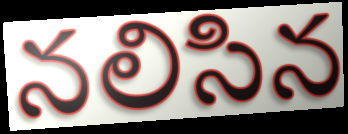
నలిసిన